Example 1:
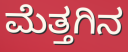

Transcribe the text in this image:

ಮೆತ್ತಗಿನ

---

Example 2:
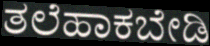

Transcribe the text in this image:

ತಲೆಹಾಕಬೇಡಿ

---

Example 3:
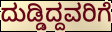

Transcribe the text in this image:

ದುಡ್ಡಿದ್ದವರಿಗೆ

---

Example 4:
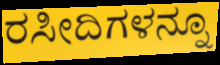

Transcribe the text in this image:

ರಸೀದಿಗಳನ್ನೂ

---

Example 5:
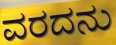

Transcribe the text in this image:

ವರದನು